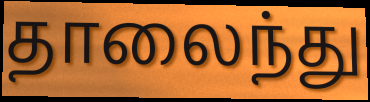
தாலைந்து